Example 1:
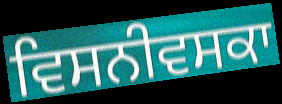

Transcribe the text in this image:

ਵਿਸਨੀਵਸਕਾ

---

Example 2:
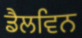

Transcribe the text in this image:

ਡੈਲਵਿਨ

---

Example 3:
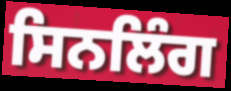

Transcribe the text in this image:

ਸਿਨਲਿੰਗ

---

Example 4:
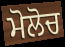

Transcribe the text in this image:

ਮੋਲੋਚ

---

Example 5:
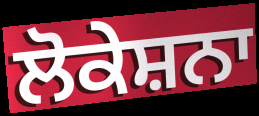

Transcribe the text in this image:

ਲੋਕੇਸ਼ਨਾ